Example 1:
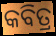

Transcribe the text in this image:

କବିତ୍ର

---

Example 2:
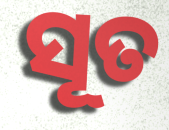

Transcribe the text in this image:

ସୂତ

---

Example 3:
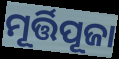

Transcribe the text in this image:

ମୂର୍ତ୍ତିପୂଜା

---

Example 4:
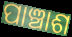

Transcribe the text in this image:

ପାଞ୍ଚାଶ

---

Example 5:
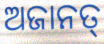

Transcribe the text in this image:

ଅଜାନତ୍